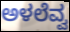
ಅಳಲೆವ್ವ